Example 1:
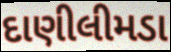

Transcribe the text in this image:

દાણીલીમડા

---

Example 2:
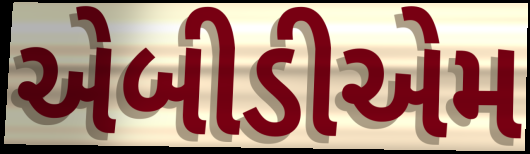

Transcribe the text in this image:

એબીડીએમ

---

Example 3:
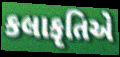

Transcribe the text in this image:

કલાકૃતિએ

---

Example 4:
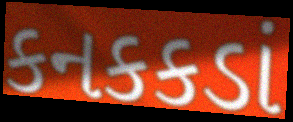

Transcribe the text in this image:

કનકકડાં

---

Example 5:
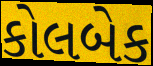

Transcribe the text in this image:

કોલબેક